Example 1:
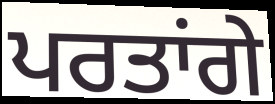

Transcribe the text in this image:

ਪਰਤਾਂਗੇ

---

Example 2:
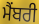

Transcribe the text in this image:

ਮੈਂਬਰੀ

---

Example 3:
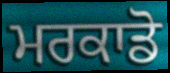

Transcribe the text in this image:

ਮਰਕਾਡੋ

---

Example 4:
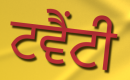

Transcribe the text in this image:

ਟਵੈਂਟੀ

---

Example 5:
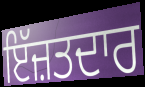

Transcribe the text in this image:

ਇੱਜ਼ਤਦਾਰ